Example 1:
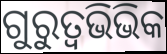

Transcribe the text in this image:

ଗୁରୁତ୍ଵଭିଭିକ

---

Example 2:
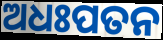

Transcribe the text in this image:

ଅଧଃପତନ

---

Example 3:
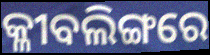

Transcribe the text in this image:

କ୍ଳୀବଲିଙ୍ଗରେ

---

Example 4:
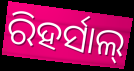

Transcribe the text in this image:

ରିହର୍ସାଲ୍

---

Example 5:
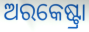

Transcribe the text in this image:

ଅରକେଷ୍ଟ୍ରା